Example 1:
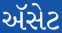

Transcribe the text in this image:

ઍસેટ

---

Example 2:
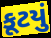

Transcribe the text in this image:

કૂટયું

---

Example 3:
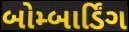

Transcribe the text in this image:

બોમ્બાર્ડિંગ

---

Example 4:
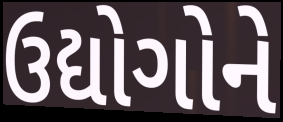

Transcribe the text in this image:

ઉદ્યોગોને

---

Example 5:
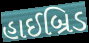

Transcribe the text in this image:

હાઈબ્રિડ